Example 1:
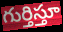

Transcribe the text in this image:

గుర్తిస్తూ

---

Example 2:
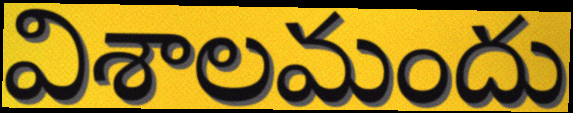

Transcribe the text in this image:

విశాలమందు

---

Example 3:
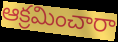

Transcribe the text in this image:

ఆక్రమించారా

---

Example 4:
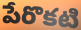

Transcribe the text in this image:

పేరొకటి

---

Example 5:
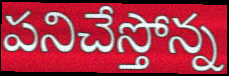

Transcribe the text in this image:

పనిచేస్తోన్న